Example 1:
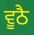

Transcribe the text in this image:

ਵੂਠੈ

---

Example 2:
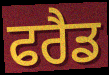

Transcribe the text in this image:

ਫਰੈਡ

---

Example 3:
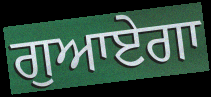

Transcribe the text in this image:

ਗੁਆਏਗਾ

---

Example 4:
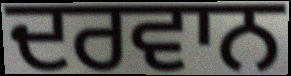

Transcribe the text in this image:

ਦਰਵਾਨ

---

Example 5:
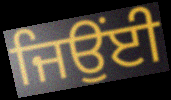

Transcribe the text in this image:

ਜਿਉਂਈ